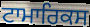
ਟਾਮਾਰਿਕਸ